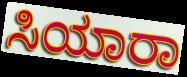
ಸಿಯಾರಾ